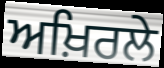
ਅਖ਼ਿਰਲੇ